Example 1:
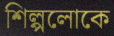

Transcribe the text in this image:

শিল্পলোকে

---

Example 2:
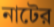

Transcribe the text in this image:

নাটের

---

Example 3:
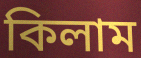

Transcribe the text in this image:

কিলাম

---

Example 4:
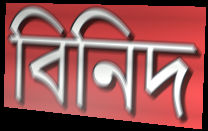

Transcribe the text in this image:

বিনিদ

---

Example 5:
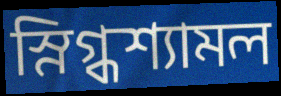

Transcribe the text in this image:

স্নিগ্ধশ্যামল